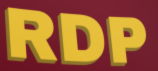
RDP